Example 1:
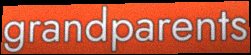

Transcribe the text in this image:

grandparents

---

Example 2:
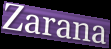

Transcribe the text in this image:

Zarana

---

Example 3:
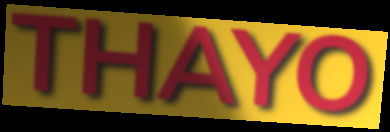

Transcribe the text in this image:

THAYO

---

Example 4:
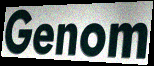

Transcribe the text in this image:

Genom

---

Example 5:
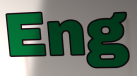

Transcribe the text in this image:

Eng